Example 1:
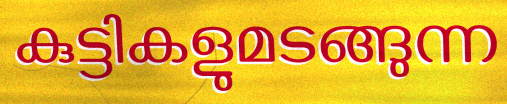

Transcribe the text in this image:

കുട്ടികളുമടങ്ങുന്ന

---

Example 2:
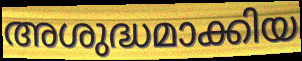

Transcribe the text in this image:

അശുദ്ധമാക്കിയ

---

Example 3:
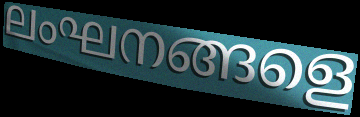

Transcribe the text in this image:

ലംഘനങ്ങളെ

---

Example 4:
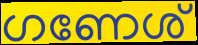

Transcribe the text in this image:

ഗണേശ്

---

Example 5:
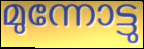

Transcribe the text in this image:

മുന്നോട്ടു